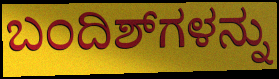
ಬಂದಿಶ್‌ಗಳನ್ನು